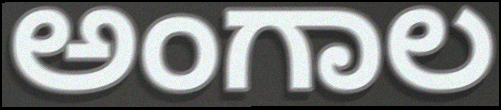
ಅಂಗಾಲ